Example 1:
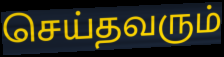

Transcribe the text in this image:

செய்தவரும்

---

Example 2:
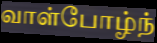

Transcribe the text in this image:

வாள்போழ்ந்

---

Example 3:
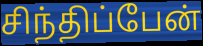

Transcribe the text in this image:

சிந்திப்பேன்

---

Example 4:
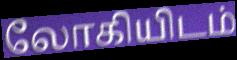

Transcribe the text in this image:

லோகியிடம்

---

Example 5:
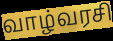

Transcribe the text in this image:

வாழ்வரசி